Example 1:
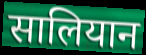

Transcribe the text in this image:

सालियान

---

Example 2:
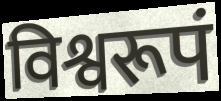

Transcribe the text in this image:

विश्वरूपं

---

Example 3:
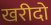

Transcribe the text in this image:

खरीदो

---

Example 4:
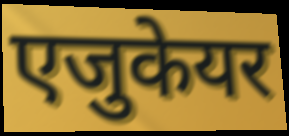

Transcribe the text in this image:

एजुकेयर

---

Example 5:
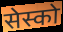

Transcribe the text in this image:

सेस्को